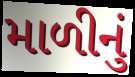
માળીનું